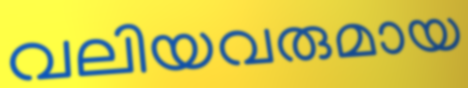
വലിയവരുമായ